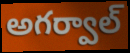
అగర్వాల్